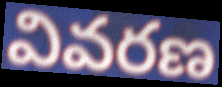
వివరణ